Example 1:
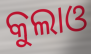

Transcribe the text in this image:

କୁଲାଓ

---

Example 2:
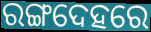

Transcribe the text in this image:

ରଙ୍ଗଦେହରେ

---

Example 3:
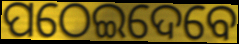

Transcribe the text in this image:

ପଠେଇଦେବେ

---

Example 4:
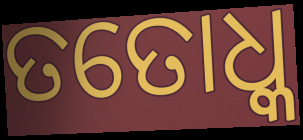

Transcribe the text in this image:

ତତୋଧ୍କ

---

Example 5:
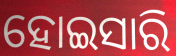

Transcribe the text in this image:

ହୋଇସାରି